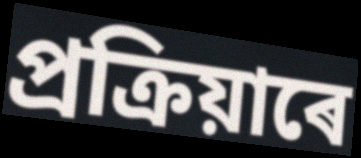
প্ৰক্ৰিয়াৰে